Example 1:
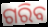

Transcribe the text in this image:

ଗରିବ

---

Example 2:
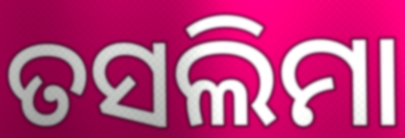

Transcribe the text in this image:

ତସଲିମା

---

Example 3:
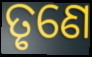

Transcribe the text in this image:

ତୃଣେ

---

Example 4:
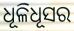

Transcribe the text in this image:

ଧୂଳିଧୂସର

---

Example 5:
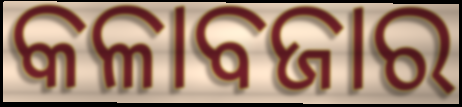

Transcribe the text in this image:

କଳାବଜାର